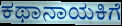
ಕಥಾನಾಯಕಿಗೆ